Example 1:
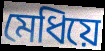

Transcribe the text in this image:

মেধিয়ে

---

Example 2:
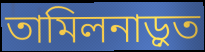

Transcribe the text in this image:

তামিলনাড়ুত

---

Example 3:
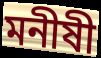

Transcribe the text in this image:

মনীষী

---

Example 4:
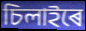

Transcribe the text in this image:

চিলাইৰে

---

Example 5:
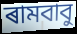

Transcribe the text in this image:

ৰামবাবু